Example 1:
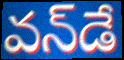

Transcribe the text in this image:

వన్‌డే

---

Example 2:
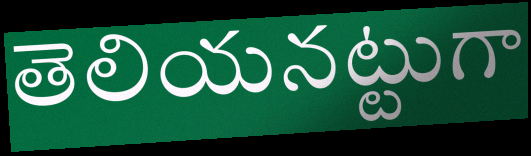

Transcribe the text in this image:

తెలియనట్టుగా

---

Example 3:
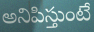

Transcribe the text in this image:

అనిపిస్తుంటే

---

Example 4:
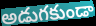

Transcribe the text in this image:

అడుగకుండా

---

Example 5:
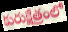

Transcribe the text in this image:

కురుక్షేత్రంలో